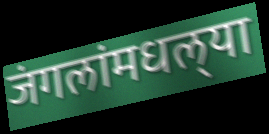
जंगलांमधल्या